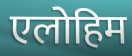
एलोहिम